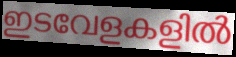
ഇടവേളകളിൽ